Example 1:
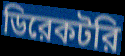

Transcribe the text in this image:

ডিরেকটরি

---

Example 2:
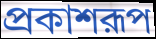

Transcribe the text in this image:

প্রকাশরূপ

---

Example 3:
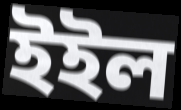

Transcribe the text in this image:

ইইল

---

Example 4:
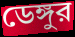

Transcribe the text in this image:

ডেঙ্গুর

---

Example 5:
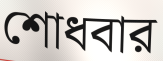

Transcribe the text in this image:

শোধবার